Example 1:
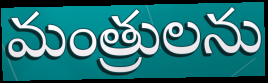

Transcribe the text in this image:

మంత్రులను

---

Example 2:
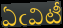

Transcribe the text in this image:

ఏఁవిటీ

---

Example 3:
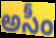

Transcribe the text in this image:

అసీం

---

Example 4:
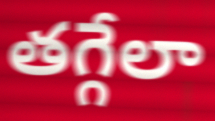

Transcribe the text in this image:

తగ్గేలా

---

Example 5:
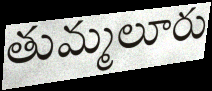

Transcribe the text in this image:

తుమ్మలూరు